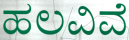
ಹಲವಿವೆ